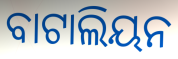
ବାଟାଲିୟନ